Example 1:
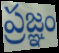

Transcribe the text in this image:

ప్రజ్ఞం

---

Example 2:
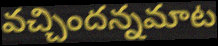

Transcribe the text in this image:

వచ్చిందన్నమాట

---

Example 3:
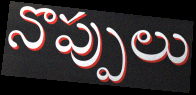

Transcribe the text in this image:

నొప్పులు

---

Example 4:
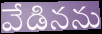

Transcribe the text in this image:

వేడినను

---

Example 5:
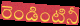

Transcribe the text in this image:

రెండింటినీ